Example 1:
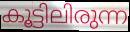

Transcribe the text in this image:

കൂട്ടിലിരുന്ന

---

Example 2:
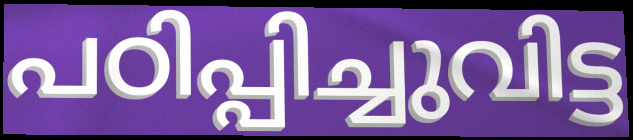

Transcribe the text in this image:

പഠിപ്പിച്ചുവിട്ട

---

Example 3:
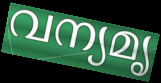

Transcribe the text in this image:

വന്യമൃ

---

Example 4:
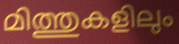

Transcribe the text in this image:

മിത്തുകളിലും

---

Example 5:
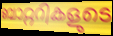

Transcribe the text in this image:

ബാറ്ററികളുടെ